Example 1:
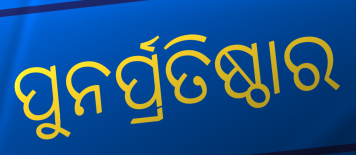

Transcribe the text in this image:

ପୁନର୍ପ୍ରତିଷ୍ଠାର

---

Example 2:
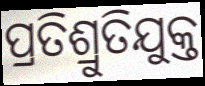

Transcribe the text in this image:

ପ୍ରତିଶ୍ରୁତିଯୁକ୍ତ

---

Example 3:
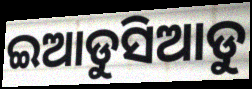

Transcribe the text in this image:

ଇଆଡୁସିଆଡୁ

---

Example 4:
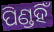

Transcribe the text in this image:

ପିଣ୍ଡହିଁ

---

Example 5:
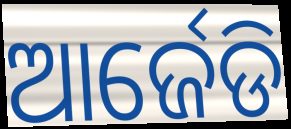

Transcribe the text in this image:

ଆର୍ଜେଡି